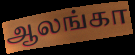
ஆலங்கா